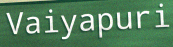
Vaiyapuri